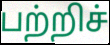
பற்றிச்